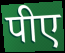
पीए